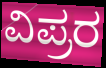
ವಿಪ್ರರ